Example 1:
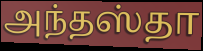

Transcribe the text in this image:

அந்தஸ்தா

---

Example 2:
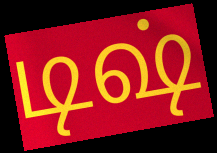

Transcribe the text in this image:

டிஷ்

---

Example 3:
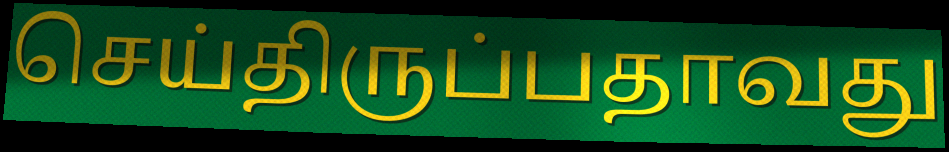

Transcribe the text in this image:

செய்திருப்பதாவது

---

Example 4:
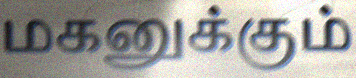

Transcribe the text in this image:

மகனுக்கும்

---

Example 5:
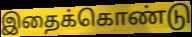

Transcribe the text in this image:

இதைக்கொண்டு